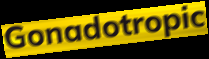
Gonadotropic